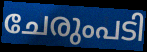
ചേരുംപടി